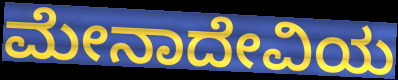
ಮೇನಾದೇವಿಯ